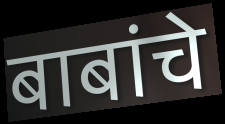
बाबांचे